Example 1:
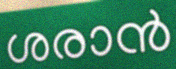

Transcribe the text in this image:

ശരാൻ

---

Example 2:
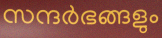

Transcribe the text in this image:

സന്ദർഭങ്ങളും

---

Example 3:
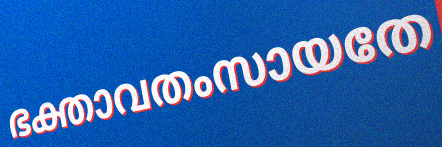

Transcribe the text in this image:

ഭക്താവതംസായതേ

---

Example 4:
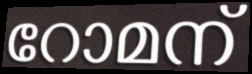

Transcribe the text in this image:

റോമന്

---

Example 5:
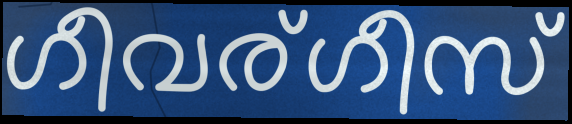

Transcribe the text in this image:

ഗീവര്ഗീസ്